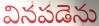
వినపడెను